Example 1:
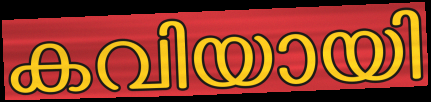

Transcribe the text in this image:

കവിയായി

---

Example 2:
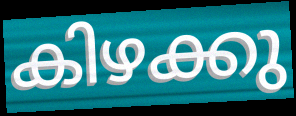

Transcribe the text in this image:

കിഴക്കു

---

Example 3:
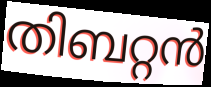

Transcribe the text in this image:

തിബറ്റൻ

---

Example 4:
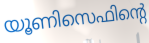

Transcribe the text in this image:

യൂണിസെഫിന്റെ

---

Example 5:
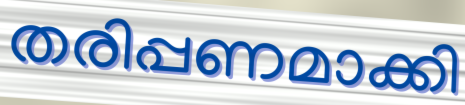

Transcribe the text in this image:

തരിപ്പണമാക്കി